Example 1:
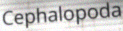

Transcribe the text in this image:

Cephalopoda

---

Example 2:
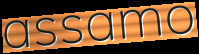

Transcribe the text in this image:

assamo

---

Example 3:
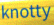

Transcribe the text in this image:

knotty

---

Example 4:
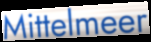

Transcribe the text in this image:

Mittelmeer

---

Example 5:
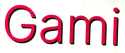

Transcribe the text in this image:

Gami